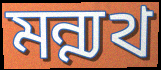
মন্মথ